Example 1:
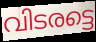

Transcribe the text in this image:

വിടരട്ടെ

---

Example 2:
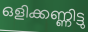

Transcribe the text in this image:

ഒളിക്കണ്ണിട്ടു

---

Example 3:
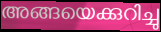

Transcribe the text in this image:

അങ്ങയെക്കുറിച്ചു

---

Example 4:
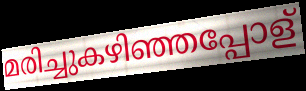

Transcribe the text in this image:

മരിച്ചുകഴിഞ്ഞപ്പോള്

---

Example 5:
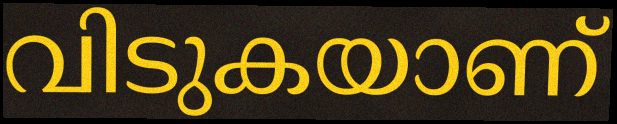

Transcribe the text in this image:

വിടുകയാണ്